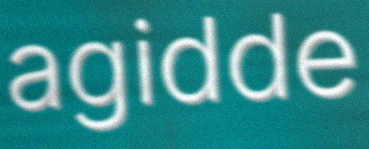
agidde